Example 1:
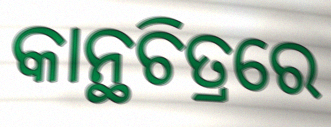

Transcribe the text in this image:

କାନ୍ଥଚିତ୍ରରେ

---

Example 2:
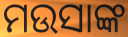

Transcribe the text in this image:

ମଉସାଙ୍କ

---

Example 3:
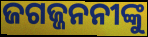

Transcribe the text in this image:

ଜଗଜ୍ଜନନୀଙ୍କୁ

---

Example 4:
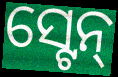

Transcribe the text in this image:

ସ୍ଟେନ୍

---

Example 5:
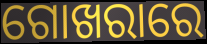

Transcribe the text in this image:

ଗୋଖରାରେ